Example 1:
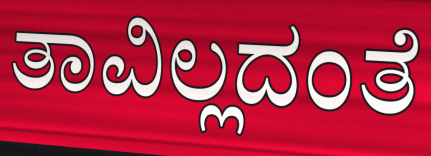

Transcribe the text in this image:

ತಾವಿಲ್ಲದಂತೆ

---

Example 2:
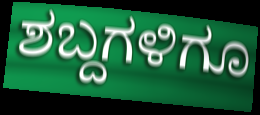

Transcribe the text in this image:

ಶಬ್ದಗಳಿಗೂ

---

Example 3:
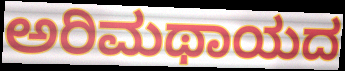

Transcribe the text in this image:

ಅರಿಮಥಾಯದ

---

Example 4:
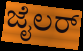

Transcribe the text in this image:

ಜೈಲರ್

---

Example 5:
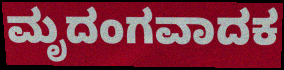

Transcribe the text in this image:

ಮೃದಂಗವಾದಕ